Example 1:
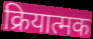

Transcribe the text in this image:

क्रियात्मक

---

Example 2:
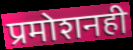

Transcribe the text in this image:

प्रमोशनही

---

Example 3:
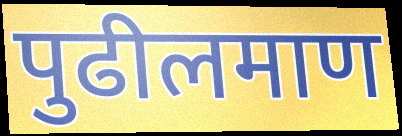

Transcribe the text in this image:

पुढीलमाण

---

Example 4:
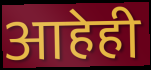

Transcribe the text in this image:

आहेही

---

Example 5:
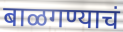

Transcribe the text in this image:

बाळगण्याचं